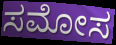
ಸಮೋಸ